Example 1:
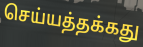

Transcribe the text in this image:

செய்யத்தக்கது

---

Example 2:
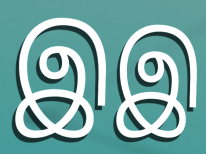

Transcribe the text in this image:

இஇ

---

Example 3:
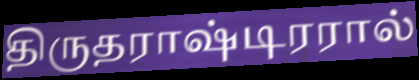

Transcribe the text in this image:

திருதராஷ்டிரரால்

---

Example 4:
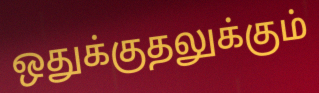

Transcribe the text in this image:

ஒதுக்குதலுக்கும்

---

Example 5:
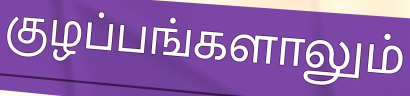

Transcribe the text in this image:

குழப்பங்களாலும்